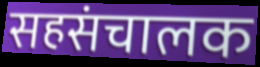
सहसंचालक